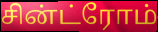
சின்ட்ரோம்